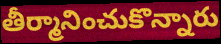
తీర్మానించుకొన్నారు